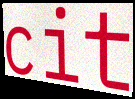
cit